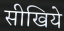
सीखिये